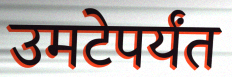
उमटेपर्यंत